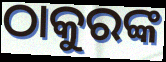
ଠାକୁରଙ୍କ